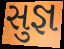
સુજ્ઞ